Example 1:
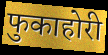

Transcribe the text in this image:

फुकाहोरी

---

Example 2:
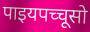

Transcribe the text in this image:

पाइयपच्चूसो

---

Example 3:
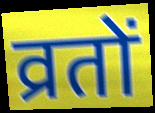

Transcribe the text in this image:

व्रतों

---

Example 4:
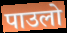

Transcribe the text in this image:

पाउलो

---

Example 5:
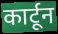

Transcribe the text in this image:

कार्टून